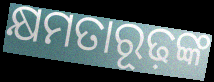
କ୍ଷମତାରୂଢ଼ଙ୍କ